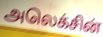
அலெக்சின்